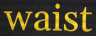
waist